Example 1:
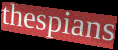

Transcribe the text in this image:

thespians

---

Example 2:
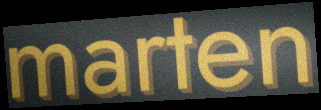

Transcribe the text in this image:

marten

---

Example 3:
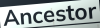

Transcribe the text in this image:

Ancestor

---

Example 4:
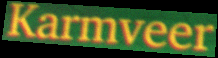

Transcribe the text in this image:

Karmveer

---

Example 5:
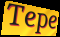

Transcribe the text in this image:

Tepe